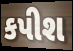
કપીશ